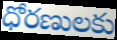
ధోరణులకు